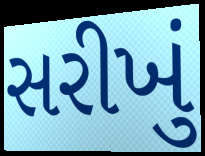
સરીખું